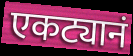
एकट्यानं